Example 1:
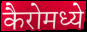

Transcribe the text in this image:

कैरोमध्ये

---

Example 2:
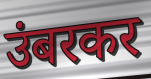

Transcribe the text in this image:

उंबरकर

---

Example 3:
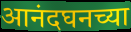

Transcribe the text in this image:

आनंदघनच्या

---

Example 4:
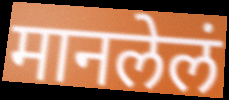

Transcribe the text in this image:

मानलेलं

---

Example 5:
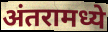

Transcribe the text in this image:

अंतरामध्ये